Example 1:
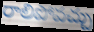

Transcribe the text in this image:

రాలిపోవచ్చు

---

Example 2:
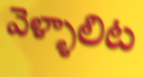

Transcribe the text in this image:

వెళ్ళాలిట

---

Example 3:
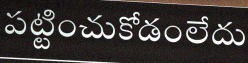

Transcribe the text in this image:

పట్టించుకోడంలేదు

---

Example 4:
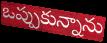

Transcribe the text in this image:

ఒప్పుకున్నాను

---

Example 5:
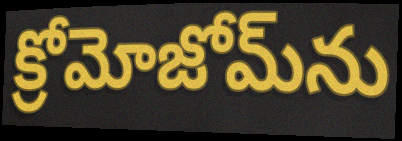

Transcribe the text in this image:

క్రోమోజోమ్‌ను